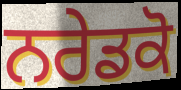
ਨਰੇਡਕੋ